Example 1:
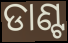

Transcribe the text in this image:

ଡାଣ୍ଟ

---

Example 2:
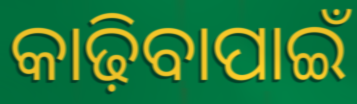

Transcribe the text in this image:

କାଢ଼ିବାପାଇଁ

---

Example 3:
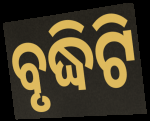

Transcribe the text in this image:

ବୃଦ୍ଧିଟି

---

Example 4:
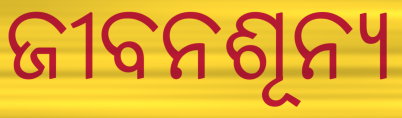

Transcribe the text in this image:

ଜୀବନଶୂନ୍ୟ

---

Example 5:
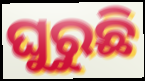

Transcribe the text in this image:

ଘୁରୁଛି